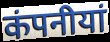
कंपनीयां